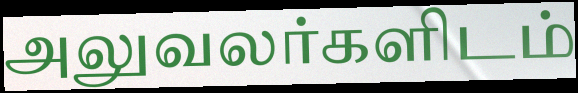
அலுவலர்களிடம்